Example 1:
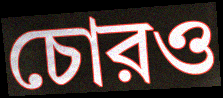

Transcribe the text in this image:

চোরও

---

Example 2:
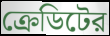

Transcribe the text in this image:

ক্রেডিটের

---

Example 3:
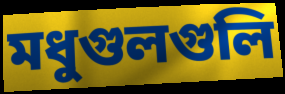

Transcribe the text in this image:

মধুগুলগুলি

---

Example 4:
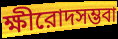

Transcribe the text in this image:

ক্ষীরোদসম্ভবা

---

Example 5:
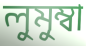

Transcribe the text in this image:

লুমুম্বা